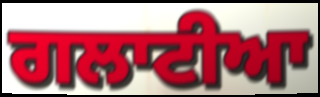
ਗਲਾਟੀਆ